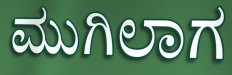
ಮುಗಿಲಾಗ